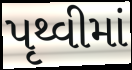
પૃથ્વીમાં